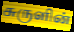
சுருளின்